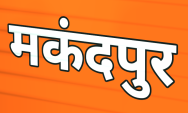
मकंदपुर